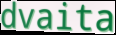
dvaita